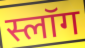
स्लॉग